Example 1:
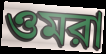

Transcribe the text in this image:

ওমরা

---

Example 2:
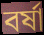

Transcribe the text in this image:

বর্ষা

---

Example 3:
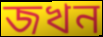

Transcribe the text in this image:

জখন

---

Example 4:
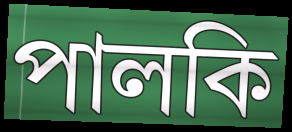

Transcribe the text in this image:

পালকি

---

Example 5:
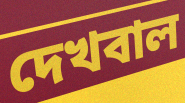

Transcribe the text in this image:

দেখবাল